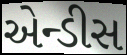
એન્ડીસ